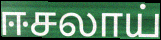
ஈசலாய்